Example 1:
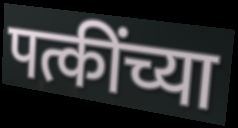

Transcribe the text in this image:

पत्कींच्या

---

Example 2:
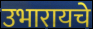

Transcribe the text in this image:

उभारायचे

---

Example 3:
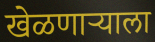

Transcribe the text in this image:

खेळणाऱ्याला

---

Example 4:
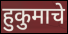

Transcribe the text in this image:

हुकुमाचे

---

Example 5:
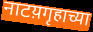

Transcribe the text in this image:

नाटय़गृहाच्या